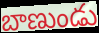
బాణుండు